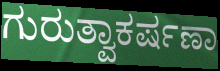
ಗುರುತ್ವಾಕರ್ಷಣಾ